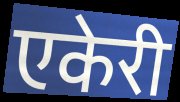
एकेरी